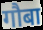
गौबा